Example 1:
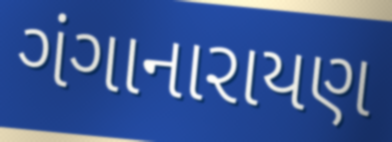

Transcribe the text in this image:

ગંગાનારાયણ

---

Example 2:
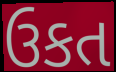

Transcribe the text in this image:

ઉકત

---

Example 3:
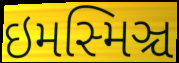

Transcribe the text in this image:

ઇમસ્મિઞ્ચ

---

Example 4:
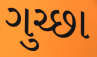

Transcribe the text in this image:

ગુચ્છા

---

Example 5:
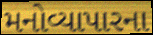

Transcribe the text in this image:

મનોવ્યાપારના